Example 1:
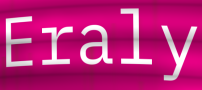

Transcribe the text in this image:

Eraly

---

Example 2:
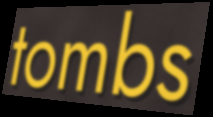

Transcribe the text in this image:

tombs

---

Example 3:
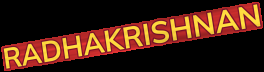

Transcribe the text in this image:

RADHAKRISHNAN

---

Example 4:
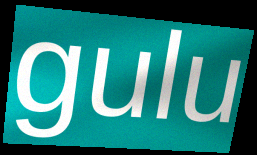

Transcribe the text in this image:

gulu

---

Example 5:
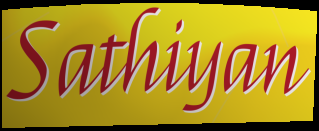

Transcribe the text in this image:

Sathiyan